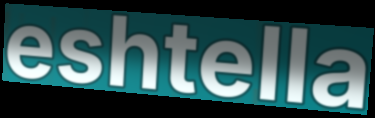
eshtella